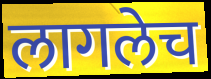
लागलेच